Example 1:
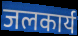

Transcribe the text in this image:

जलकार्य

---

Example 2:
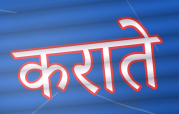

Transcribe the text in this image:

कराते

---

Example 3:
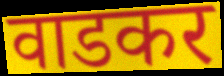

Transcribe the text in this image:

वाडकर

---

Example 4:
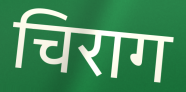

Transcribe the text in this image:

चिराग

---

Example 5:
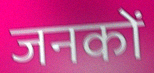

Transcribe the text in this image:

जनकों